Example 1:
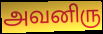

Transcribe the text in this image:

அவனிரு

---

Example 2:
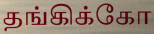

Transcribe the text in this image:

தங்கிக்கோ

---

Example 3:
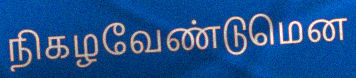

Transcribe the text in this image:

நிகழவேண்டுமென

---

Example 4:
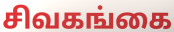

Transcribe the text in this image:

சிவகங்கை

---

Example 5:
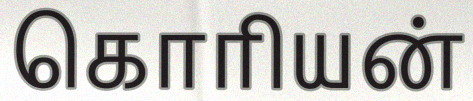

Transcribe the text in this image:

கொரியன்